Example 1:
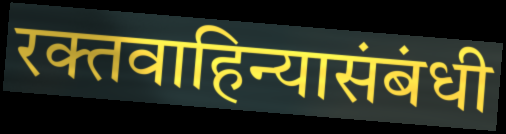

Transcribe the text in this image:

रक्तवाहिन्यासंबंधी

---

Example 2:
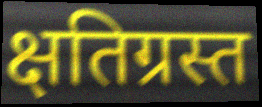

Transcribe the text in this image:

क्षतिग्रस्त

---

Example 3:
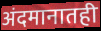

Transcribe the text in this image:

अंदमानातही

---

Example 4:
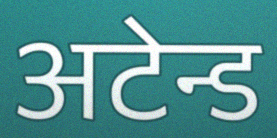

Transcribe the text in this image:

अटेन्ड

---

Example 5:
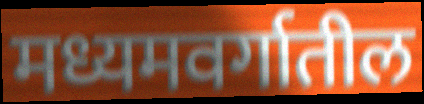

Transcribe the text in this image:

मध्यमवर्गातील